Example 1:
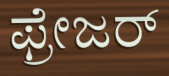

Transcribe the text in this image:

ಫ್ರೇಜರ್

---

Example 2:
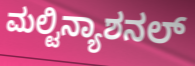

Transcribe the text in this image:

ಮಲ್ಟಿನ್ಯಾಶನಲ್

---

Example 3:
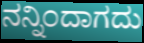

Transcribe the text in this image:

ನನ್ನಿಂದಾಗದು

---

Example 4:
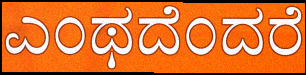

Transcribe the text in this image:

ಎಂಥದೆಂದರೆ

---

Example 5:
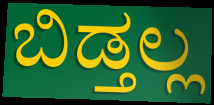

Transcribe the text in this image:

ಬಿಡ್ತಲ್ಲ